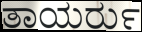
ತಾಯರ್ರು